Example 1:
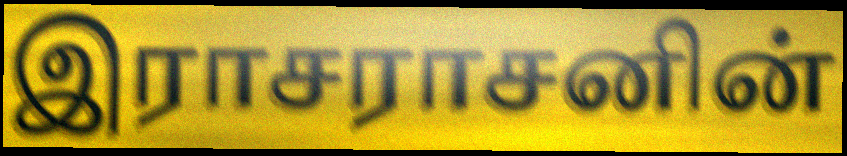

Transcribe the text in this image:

இராசராசனின்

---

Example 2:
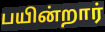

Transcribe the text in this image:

பயின்றார்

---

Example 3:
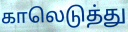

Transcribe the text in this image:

காலெடுத்து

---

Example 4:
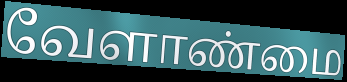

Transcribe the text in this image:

வேளாண்மை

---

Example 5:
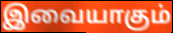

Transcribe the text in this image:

இவையாகும்